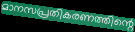
മാനസപ്രതികരണത്തിന്റെ